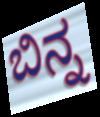
ಬಿನ್ನ